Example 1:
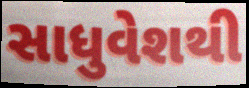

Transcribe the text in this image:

સાધુવેશથી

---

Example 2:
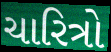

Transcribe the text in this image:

ચારિત્રો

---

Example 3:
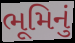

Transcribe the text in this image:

ભૂમિનું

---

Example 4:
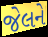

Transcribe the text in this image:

જેલને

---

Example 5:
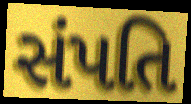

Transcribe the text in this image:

સંપતિ